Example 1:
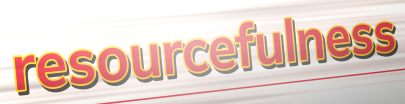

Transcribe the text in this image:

resourcefulness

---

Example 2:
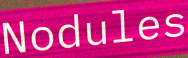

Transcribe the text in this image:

Nodules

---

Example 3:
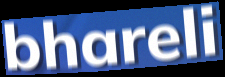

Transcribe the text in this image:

bhareli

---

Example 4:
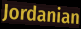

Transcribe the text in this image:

Jordanian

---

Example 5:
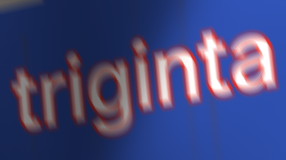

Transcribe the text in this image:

triginta